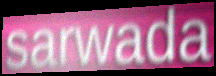
sarwada